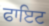
ਫਾਇਟ